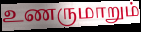
உணருமாறும்